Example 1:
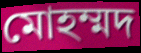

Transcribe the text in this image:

মোহম্মদ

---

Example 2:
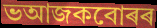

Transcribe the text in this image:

ভআজকবোৰৰ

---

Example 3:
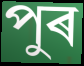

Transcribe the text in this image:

পুৰ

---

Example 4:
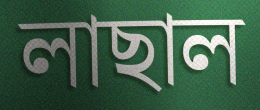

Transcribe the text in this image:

লাছাল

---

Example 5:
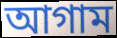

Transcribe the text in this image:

আগাম